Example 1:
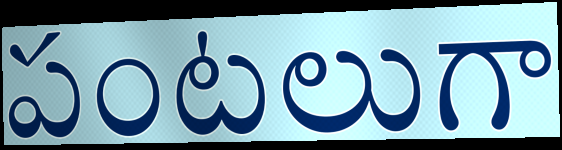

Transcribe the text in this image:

పంటలుగా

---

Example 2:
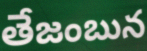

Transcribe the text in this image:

తేజంబున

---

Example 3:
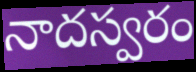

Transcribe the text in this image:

నాదస్వరం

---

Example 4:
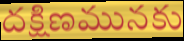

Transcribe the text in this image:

దక్షిణమునకు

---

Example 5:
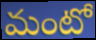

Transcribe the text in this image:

మంటో